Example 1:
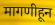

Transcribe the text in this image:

मागणीहून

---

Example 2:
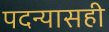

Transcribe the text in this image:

पदन्यासही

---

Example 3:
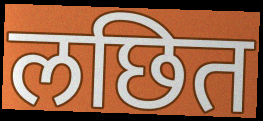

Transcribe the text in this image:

लछित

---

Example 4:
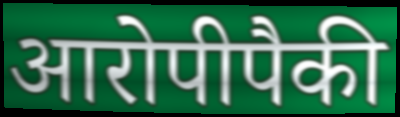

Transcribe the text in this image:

आरोपीपैकी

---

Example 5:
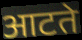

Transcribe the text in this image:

आटते